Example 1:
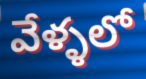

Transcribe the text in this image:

వేళ్ళలో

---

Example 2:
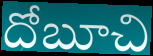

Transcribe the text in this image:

దోబూచి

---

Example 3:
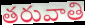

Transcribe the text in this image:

తరువాతి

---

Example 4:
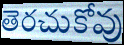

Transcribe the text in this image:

తెరచుకోవు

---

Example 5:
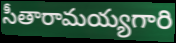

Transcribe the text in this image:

సీతారామయ్యగారి